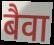
बैवा